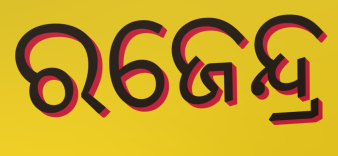
ରଜେନ୍ଦ୍ର